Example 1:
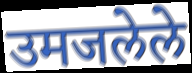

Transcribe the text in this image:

उमजलेले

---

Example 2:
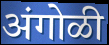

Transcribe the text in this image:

अंगोळी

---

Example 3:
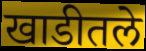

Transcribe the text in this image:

खाडीतले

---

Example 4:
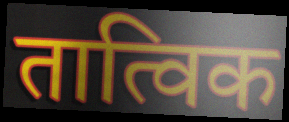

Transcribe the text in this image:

तात्विक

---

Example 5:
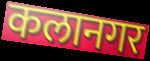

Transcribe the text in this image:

कलानगर